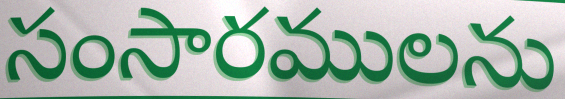
సంసారములను